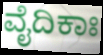
ವೈದಿಕಾಃ